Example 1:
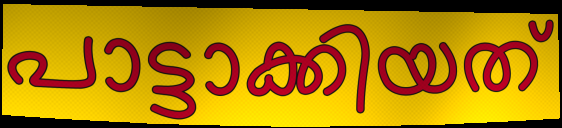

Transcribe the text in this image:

പാട്ടാക്കിയത്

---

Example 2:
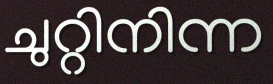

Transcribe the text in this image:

ചുറ്റിനിന്ന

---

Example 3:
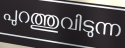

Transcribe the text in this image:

പുറത്തുവിടുന്ന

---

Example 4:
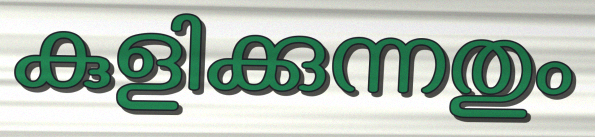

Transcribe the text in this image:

കുളിക്കുന്നതും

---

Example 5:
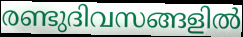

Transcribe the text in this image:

രണ്ടുദിവസങ്ങളിൽ